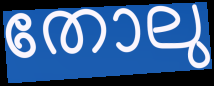
തോലു